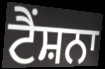
ਟੈਂਸ਼ਨਾ